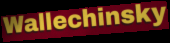
Wallechinsky